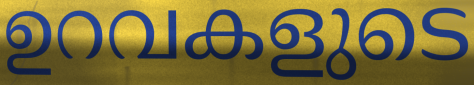
ഉറവകളുടെ